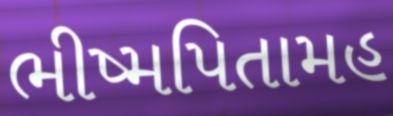
ભીષ્મપિતામહ